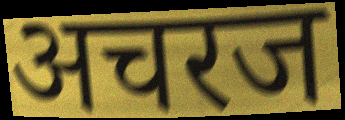
अचरज